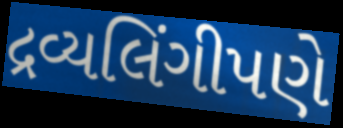
દ્રવ્યલિંગીપણે